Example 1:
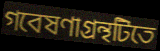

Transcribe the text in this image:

গবেষণাগ্রন্থটিতে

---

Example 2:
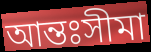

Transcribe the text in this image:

আন্তঃসীমা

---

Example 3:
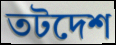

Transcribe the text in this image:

তটদেশ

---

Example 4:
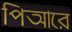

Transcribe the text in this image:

পিআরে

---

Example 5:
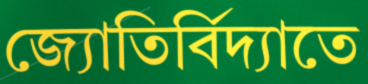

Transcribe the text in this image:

জ্যোতির্বিদ্যাতে